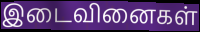
இடைவினைகள்